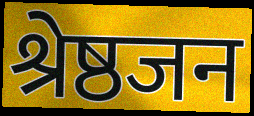
श्रेष्ठजन